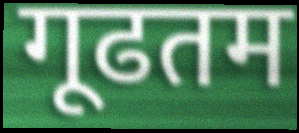
गूढतम